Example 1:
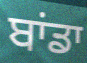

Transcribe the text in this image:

ਬਾਂਡਾ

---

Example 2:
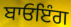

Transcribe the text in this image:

ਬਾਓਇੰਗ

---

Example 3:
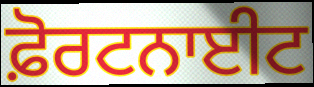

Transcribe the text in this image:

ਫ਼ੋਰਟਨਾਈਟ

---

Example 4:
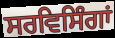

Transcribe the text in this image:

ਸਰਵਿਸਿੰਗਾਂ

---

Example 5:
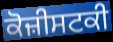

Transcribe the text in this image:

ਕੋਜ਼ੀਸਟਕੀ